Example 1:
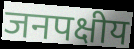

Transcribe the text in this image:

जनपक्षीय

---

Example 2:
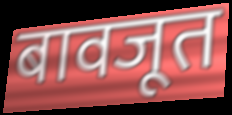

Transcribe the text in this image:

बावजूत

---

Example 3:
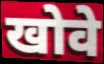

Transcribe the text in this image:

खोवे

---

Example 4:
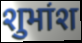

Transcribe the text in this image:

शुभांश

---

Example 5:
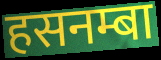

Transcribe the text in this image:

हसनम्बा